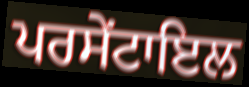
ਪਰਸੇਂਟਾਇਲ